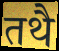
तथै